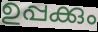
ഉപ്പക്കും